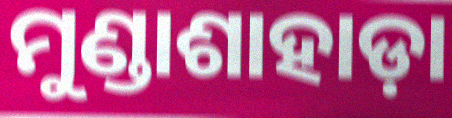
ମୁଣ୍ଡାଶାହାଡ଼ା